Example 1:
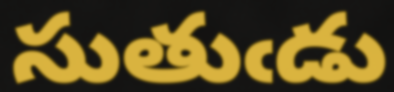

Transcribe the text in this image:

సుతుఁడు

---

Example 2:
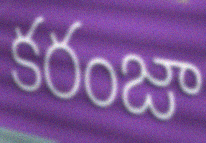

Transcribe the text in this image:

కరంజా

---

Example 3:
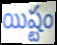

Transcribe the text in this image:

యిష్టం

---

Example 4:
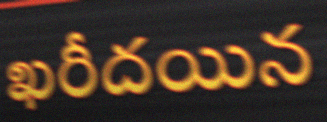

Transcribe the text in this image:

ఖరీదయిన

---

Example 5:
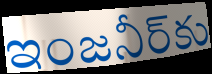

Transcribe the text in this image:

ఇంజనీర్‌కు